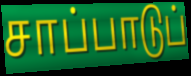
சாப்பாடுப்